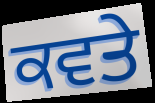
ਕਵਤੇ